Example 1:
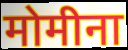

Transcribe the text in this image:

मोमीना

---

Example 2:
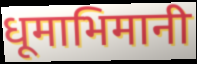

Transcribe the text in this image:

धूमाभिमानी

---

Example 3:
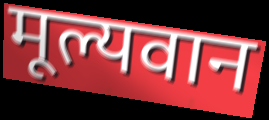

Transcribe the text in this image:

मूल्यवान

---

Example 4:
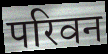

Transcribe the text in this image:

परिवन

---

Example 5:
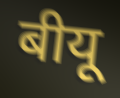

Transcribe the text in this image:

बीयू